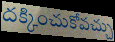
దక్కించుకోవచ్చు